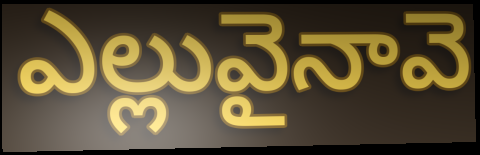
ఎల్లువైనావె